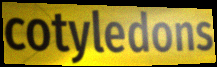
cotyledons